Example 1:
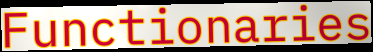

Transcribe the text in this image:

Functionaries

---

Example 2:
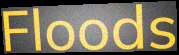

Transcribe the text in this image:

Floods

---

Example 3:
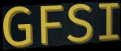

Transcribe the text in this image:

GFSI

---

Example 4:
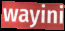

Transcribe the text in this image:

wayini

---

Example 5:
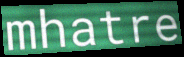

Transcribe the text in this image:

mhatre